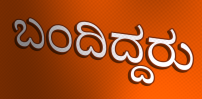
ಬಂದಿದ್ದರು